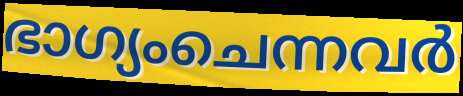
ഭാഗ്യംചെന്നവർ